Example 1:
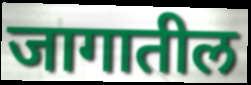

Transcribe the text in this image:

जागातील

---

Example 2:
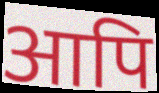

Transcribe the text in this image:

आपि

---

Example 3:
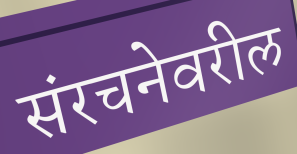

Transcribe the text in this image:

संरचनेवरील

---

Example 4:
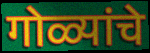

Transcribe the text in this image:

गोळ्यांचे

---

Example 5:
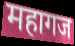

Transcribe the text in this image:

महागज